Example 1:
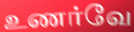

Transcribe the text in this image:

உணர்வே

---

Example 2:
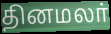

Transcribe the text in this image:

தினமலர்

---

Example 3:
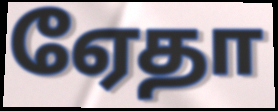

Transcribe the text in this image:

ஏேதா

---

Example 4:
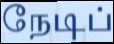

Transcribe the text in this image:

நேடிப்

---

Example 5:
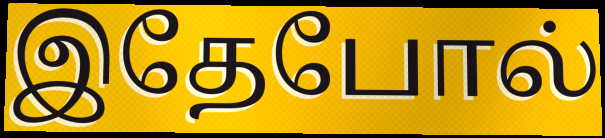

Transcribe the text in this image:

இதேபோல்